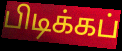
பிடிக்கப்